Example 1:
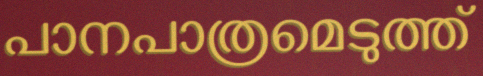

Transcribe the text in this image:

പാനപാത്രമെടുത്ത്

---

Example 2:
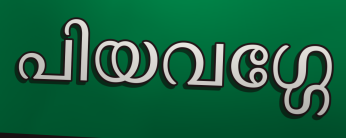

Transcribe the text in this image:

പിയവഗ്ഗേ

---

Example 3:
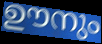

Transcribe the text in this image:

ഊനും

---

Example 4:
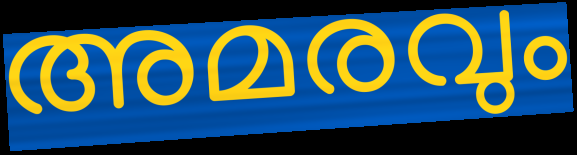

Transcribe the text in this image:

അമരവും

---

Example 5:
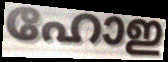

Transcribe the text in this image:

ഹോഇ